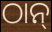
ଠାନ୍